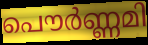
പൌർണ്ണമി